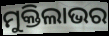
ମୁକ୍ତିଲାଭର